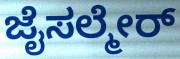
ಜೈಸಲ್ಮೇರ್